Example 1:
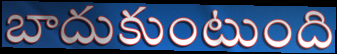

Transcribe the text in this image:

బాదుకుంటుంది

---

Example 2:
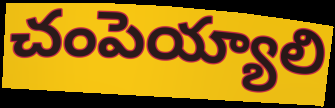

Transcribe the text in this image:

చంపెయ్యాలి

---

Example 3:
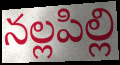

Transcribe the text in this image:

నల్లపిల్లి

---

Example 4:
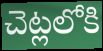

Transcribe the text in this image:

చెట్లలోకి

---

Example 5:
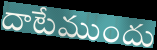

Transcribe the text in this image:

దాటేముందు